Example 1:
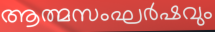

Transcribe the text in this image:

ആത്മസംഘർഷവും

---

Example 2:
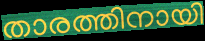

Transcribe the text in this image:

താരത്തിനായി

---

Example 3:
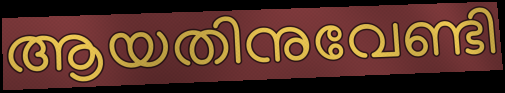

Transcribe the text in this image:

ആയതിനുവേണ്ടി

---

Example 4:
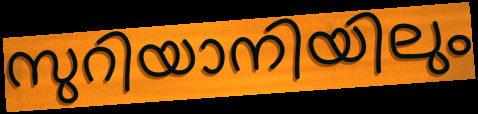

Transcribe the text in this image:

സുറിയാനിയിലും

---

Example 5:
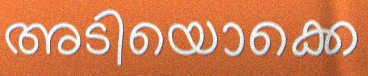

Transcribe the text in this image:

അടിയൊക്കെ